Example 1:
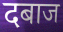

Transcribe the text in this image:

दबाज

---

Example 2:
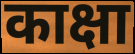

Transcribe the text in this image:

काक्षा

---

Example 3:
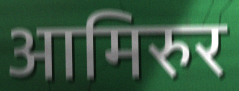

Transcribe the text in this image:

आमिरुर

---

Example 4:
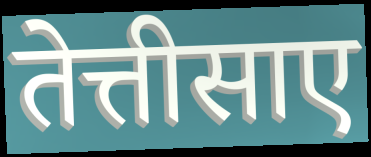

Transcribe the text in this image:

तेत्तीसाए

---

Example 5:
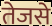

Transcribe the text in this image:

तेजसे